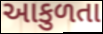
આકુળતા